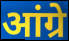
आंग्रे